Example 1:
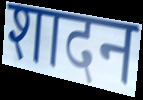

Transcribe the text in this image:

शादन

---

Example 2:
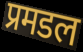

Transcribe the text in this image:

प्रमडल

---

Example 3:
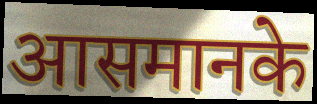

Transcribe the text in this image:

आसमानके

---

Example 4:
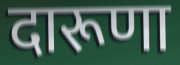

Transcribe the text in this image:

दारूणा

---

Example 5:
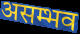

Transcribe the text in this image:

असम्‍भव